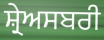
ਸ਼੍ਰੇਅਸਬਰੀ